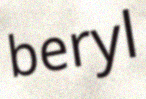
beryl